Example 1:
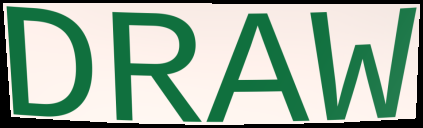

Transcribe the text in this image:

DRAW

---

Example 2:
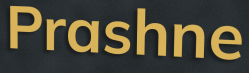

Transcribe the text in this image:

Prashne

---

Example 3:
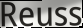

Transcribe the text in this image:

Reuss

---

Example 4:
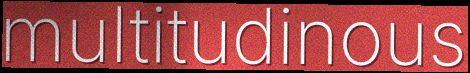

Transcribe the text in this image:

multitudinous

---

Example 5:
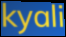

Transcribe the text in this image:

kyali